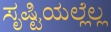
ಸೃಷ್ಟಿಯಲ್ಲೆಲ್ಲ